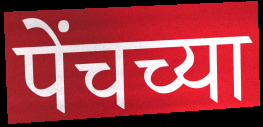
पेंचच्या